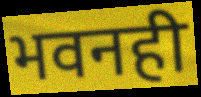
भवनही